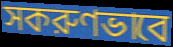
সকরুণভাবে